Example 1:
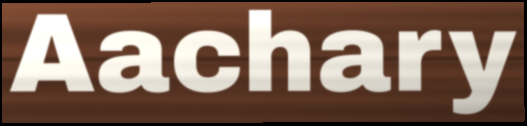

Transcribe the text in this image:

Aachary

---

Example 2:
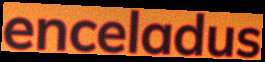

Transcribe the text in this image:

enceladus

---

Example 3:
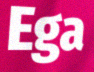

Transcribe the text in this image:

Ega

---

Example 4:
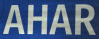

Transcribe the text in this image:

AHAR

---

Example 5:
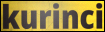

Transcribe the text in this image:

kurinci